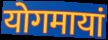
योगमायां